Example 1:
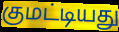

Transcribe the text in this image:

குமட்டியது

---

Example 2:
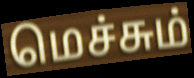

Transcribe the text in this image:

மெச்சும்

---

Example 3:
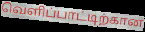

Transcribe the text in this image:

வெளிப்பாட்டிற்கான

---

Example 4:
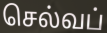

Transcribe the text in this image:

செல்வப்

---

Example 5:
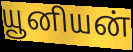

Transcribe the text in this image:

யூனியன்